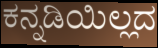
ಕನ್ನಡಿಯಿಲ್ಲದ